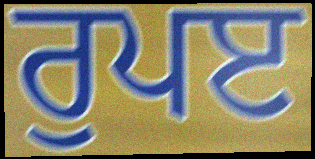
ਰੁਪੲ